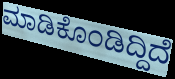
ಮಾಡಿಕೊಂಡಿದ್ದಿದೆ